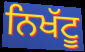
ਨਿਖੱਟੂ